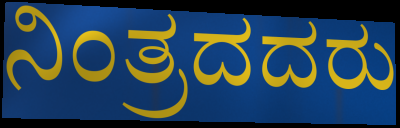
ನಿಂತ್ರದದರು